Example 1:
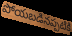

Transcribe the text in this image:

పోయబడినప్పటికి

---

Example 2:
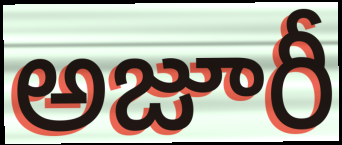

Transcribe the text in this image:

అజూరీ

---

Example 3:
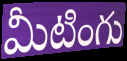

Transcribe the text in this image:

మీటింగు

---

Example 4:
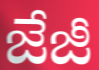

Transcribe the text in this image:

జేజీ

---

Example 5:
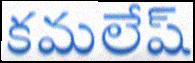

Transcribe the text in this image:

కమలేష్